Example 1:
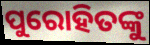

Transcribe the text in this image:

ପୁରୋହିତଙ୍କୁ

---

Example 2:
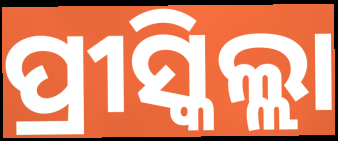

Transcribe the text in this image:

ପ୍ରୀସ୍କିଲ୍ଲା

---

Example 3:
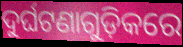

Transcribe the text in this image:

ଦୁର୍ଘଟଣାଗୁଡ଼ିକରେ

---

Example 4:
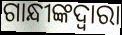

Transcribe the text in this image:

ଗାନ୍ଧୀଙ୍କଦ୍ଵାରା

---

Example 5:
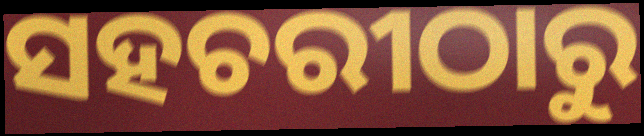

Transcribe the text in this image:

ସହଚରୀଠାରୁ